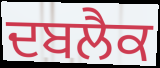
ਦਬਲੈਕ